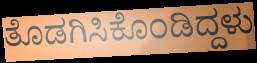
ತೊಡಗಿಸಿಕೊಂಡಿದ್ದಳು